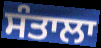
ਸੰਤਾਲਾ